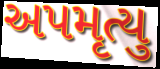
અપમૃત્યુ